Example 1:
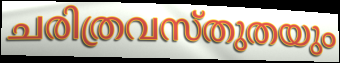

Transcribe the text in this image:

ചരിത്രവസ്തുതയും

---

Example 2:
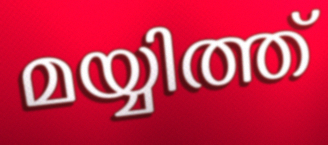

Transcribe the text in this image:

മയ്യിത്ത്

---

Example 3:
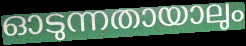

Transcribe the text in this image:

ഓടുന്നതായാലും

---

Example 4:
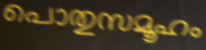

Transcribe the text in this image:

പൊതുസമൂഹം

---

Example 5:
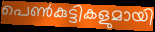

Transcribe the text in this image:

പെൺകുട്ടികളുമായി